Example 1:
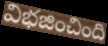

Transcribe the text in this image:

విభజించింది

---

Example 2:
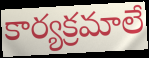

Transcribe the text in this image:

కార్యక్రమాలే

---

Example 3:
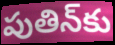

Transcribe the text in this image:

పుతిన్‌కు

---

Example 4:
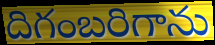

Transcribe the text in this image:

దిగంబరిగాను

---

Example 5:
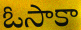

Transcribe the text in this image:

ఓసాకా